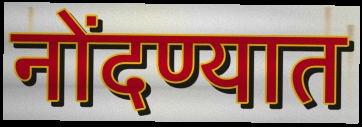
नोंदण्यात